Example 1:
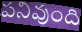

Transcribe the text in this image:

పనివుంది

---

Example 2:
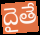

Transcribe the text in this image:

దైతే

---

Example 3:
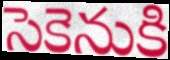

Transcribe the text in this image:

సెకెనుకి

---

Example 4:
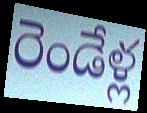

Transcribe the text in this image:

రెండేళ్ల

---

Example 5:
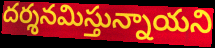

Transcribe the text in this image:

దర్శనమిస్తున్నాయని